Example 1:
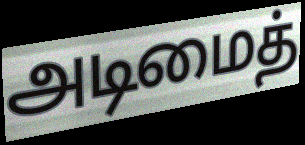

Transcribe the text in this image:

அடிமைத்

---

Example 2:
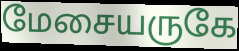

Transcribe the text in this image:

மேசையருகே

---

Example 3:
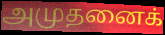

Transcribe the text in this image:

அமுதனைக்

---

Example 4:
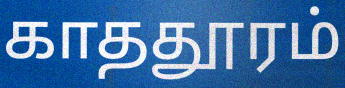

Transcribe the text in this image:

காததூரம்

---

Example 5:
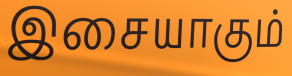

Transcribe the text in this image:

இசையாகும்